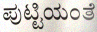
ಪುಟ್ಟಿಯಂತೆ